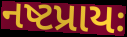
નષ્ટપ્રાયઃ